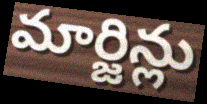
మార్జిన్లు